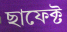
ছাফেক্ট